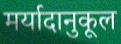
मर्यादानुकूल